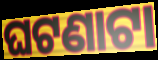
ଘଟଣାଟା